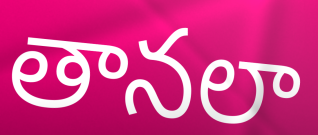
తానలా